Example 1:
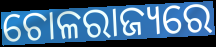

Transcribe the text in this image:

ଚୋଳରାଜ୍ୟରେ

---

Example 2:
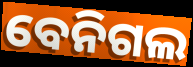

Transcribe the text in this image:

ବେନିଗଲ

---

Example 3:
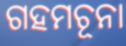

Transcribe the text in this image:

ଗହମଚୂନା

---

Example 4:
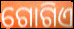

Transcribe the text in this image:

ଗୋଗିଏ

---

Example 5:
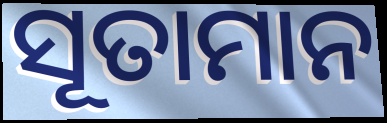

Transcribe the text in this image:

ସୂତାମାନ